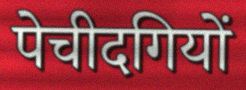
पेचीदगियों